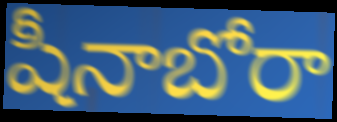
షీనాబోరా